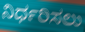
ನಿರ್ಧರಿಸಲು